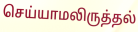
செய்யாமலிருத்தல்